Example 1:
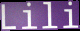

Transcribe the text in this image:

Lili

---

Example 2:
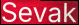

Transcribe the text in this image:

Sevak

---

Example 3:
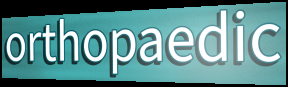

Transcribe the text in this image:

orthopaedic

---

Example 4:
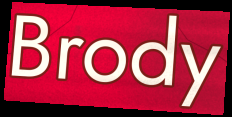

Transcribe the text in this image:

Brody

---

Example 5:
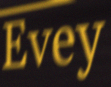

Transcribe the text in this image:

Evey